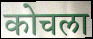
कोचला